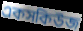
একসকিউজ